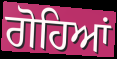
ਗੋਹਿਆਂ